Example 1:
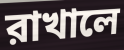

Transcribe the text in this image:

রাখালে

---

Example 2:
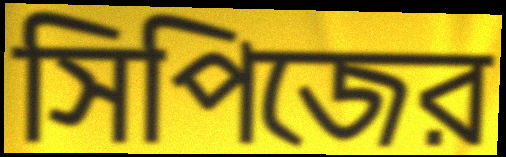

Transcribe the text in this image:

সিপিজের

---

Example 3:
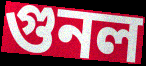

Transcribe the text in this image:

গুনল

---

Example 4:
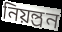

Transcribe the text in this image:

নিয়ন্ত্রন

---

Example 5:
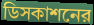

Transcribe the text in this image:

ডিসকাশনের